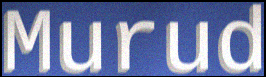
Murud